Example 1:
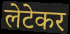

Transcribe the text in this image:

लेटेकर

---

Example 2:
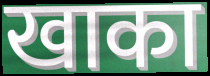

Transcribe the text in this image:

खाका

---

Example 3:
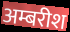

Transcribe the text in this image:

अम्बरीश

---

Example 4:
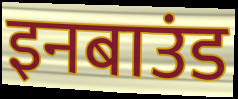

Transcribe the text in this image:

इनबाउंड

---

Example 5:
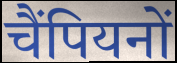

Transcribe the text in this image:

चैंपियनों